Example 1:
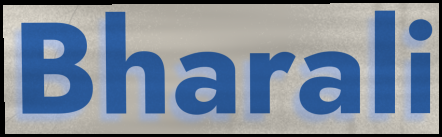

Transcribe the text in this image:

Bharali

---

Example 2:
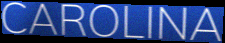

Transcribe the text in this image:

CAROLINA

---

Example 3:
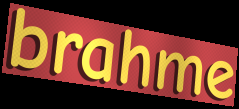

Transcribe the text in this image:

brahme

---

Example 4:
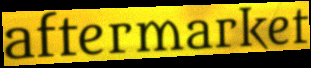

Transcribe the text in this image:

aftermarket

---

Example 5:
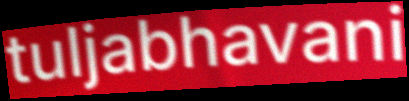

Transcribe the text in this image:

tuljabhavani